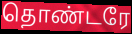
தொண்டரே